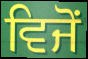
ਵਿਜੋਂ